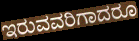
ಇರುವವರಿಗಾದರೂ